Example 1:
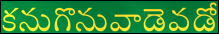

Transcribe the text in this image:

కనుగొనువాడెవడో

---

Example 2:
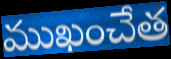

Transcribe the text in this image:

ముఖంచేత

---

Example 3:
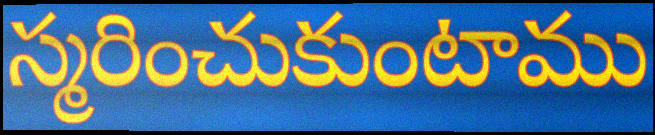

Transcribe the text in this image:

స్మరించుకుంటాము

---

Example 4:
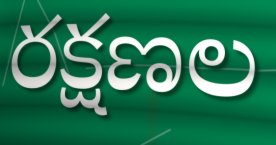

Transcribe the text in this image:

రక్షణల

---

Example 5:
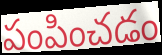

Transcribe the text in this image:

పంపించడం